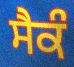
ਸੈਕੰ